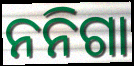
ନନିଗା